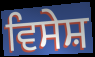
ਵਿਸੇਸ਼